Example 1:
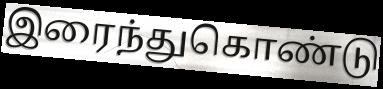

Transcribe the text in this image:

இரைந்துகொண்டு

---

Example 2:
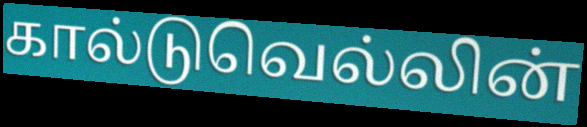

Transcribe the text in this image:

கால்டுவெல்லின்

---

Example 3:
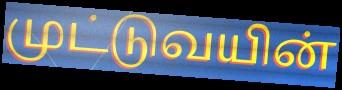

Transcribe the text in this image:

முட்டுவயின்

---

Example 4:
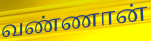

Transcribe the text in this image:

வண்ணான்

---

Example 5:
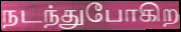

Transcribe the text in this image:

நடந்துபோகிற